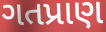
ગતપ્રાણ